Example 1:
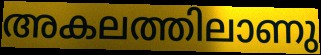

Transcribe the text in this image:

അകലത്തിലാണു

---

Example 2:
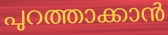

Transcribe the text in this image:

പുറത്താക്കാൻ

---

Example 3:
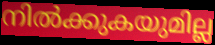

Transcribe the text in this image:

നിൽക്കുകയുമില്ല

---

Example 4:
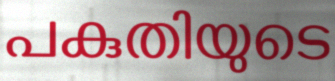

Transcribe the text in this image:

പകുതിയുടെ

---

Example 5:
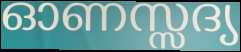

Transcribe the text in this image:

ഓണസ്സദ്യ